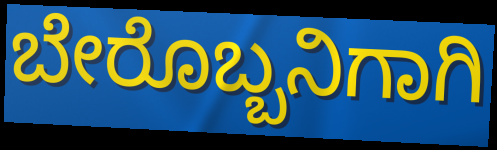
ಬೇರೊಬ್ಬನಿಗಾಗಿ